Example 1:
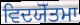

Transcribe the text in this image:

ਵਿਦਯੋੱਤਮਾ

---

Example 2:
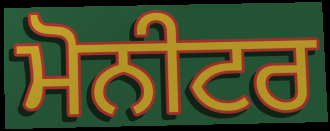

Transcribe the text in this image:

ਮੋਨੀਟਰ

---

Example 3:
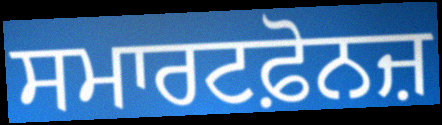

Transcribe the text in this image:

ਸਮਾਰਟਫ਼ੋਨਜ਼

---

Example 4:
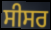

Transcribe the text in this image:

ਸੀਸਰ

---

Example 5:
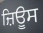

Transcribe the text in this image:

ਜ਼ਿਊਸ